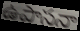
ఉపాసనా